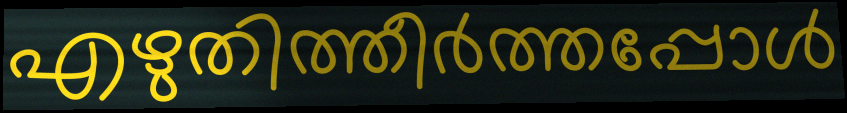
എഴുതിത്തീർത്തപ്പോൾ